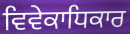
ਵਿਵੇਕਾਧਿਕਾਰ